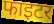
फाइटर